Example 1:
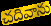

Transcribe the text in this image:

చదివాను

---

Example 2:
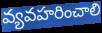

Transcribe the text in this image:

వ్యవహరించాలి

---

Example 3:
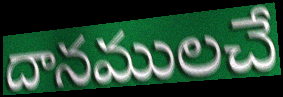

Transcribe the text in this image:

దానములచే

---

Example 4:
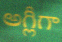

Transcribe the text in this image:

అగ్లీగా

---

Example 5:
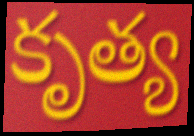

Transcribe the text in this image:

కృత్య